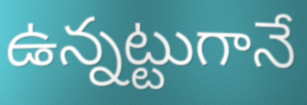
ఉన్నట్టుగానే